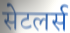
सेटलर्स